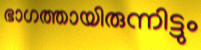
ഭാഗത്തായിരുന്നിട്ടും